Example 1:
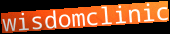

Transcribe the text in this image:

wisdomclinic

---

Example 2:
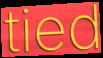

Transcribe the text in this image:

tied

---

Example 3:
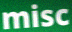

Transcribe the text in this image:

misc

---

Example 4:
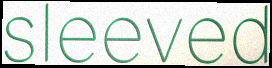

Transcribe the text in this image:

sleeved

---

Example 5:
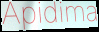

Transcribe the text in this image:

Apidima